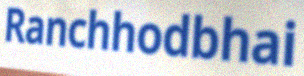
Ranchhodbhai